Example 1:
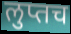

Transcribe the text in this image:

लुप्तच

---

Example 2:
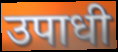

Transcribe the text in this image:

उपाधी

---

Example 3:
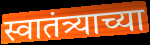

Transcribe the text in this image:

स्वातंत्र्याच्या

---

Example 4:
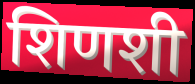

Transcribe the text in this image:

शिणशी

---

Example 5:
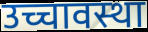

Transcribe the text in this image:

उच्चावस्था